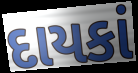
દાયકાં